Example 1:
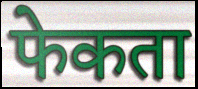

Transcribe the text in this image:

फेकता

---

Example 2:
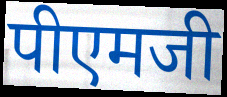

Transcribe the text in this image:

पीएमजी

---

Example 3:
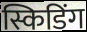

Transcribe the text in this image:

स्किडिंग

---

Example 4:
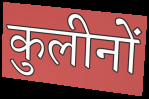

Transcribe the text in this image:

कुलीनों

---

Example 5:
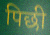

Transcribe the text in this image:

पिछी